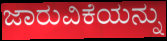
ಜಾರುವಿಕೆಯನ್ನು